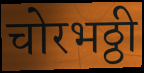
चोरभठ्ठी